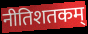
नीतिशतकम्